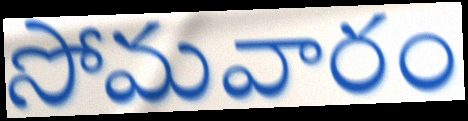
సోమవారం